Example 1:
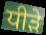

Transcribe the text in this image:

ਧੀੜੇ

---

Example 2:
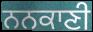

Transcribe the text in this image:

ਨਨਕਾਣੀ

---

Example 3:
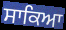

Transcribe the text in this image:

ਸਾਕਿਆ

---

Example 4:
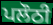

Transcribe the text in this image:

ਪਲੌਠੀ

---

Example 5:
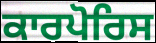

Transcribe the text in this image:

ਕਾਰਪੋਰਿਸ